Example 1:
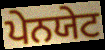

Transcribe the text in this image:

ਪੇਨਯੇਟ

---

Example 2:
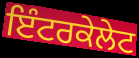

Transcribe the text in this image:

ਇੰਟਰਕੇਲੇਟ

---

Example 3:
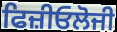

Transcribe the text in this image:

ਫਿਜ਼ੀਓਲੋਜੀ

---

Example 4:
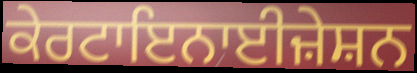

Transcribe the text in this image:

ਕੇਰਟਾਇਨਾਈਜ਼ੇਸ਼ਨ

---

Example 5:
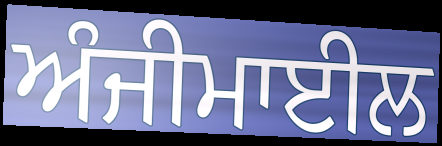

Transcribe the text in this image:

ਅੰਜੀਮਾਈਲ